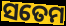
ସତେମ